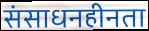
संसाधनहीनता